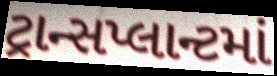
ટ્રાન્સપ્લાન્ટમાં